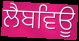
ਲੈਬਵਿਊ